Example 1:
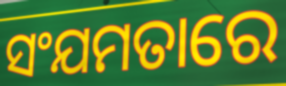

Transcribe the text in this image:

ସଂଯମତାରେ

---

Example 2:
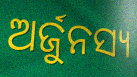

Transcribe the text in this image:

ଅର୍ଜୁନସ୍ୟ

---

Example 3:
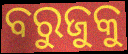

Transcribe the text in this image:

ବରୁଜୁକୁ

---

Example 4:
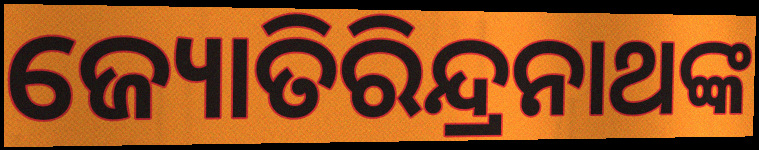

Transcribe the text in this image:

ଜ୍ୟୋତିରିନ୍ଦ୍ରନାଥଙ୍କ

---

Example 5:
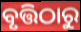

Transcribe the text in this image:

ବୃତ୍ତିଠାରୁ